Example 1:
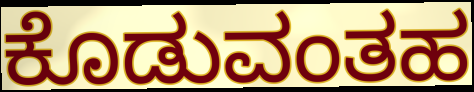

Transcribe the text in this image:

ಕೊಡುವಂತಹ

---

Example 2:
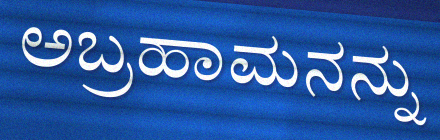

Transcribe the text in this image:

ಅಬ್ರಹಾಮನನ್ನು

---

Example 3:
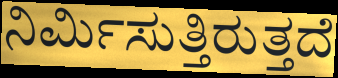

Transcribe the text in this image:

ನಿರ್ಮಿಸುತ್ತಿರುತ್ತದೆ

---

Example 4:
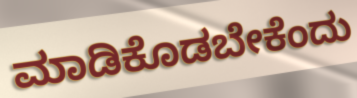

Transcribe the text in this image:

ಮಾಡಿಕೊಡಬೇಕೆಂದು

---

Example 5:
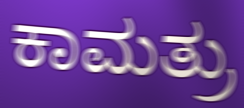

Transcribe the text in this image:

ಕಾಮತ್ರು